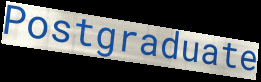
Postgraduate